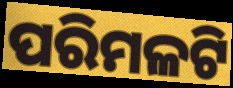
ପରିମଳଟି